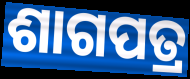
ଶାଗପତ୍ର